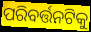
ପରିବର୍ତ୍ତନଟିକୁ